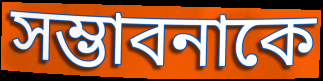
সম্ভাবনাকে